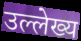
उल्लेख्य